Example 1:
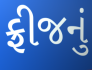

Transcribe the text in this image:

ફ્રીજનું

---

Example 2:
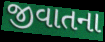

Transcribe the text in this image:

જીવાતના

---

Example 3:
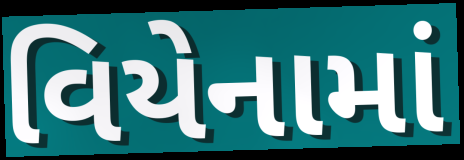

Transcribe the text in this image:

વિયેનામાં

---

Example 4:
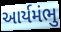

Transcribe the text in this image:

આર્યમંભુ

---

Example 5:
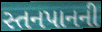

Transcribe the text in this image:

સ્તનપાનની